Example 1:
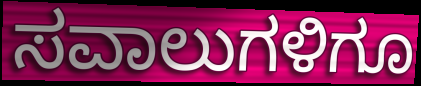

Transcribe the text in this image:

ಸವಾಲುಗಳಿಗೂ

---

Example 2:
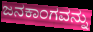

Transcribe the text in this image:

ಜನಕಾಂಗವನ್ನು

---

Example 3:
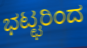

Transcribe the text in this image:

ಭಟ್ಟರಿಂದ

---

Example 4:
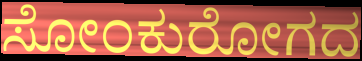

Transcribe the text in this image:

ಸೋಂಕುರೋಗದ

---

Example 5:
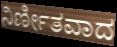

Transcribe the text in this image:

ನಿರ್ಣೀತವಾದ